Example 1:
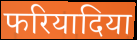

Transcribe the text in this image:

फरियादिया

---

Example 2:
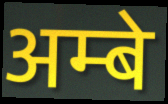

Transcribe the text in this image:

अम्बे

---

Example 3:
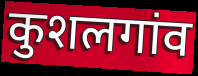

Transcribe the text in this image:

कुशलगांव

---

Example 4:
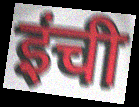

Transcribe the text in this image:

इंची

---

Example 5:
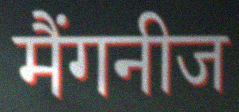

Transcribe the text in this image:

मैंगनीज